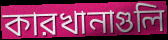
কারখানাগুলি